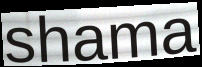
shama